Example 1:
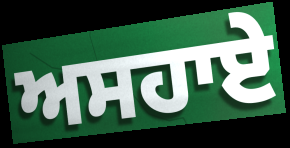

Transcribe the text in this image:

ਅਸਹਾਏ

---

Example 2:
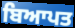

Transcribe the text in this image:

ਬਿਆਪਤ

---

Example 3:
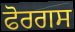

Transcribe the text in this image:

ਫੋਰਗਸ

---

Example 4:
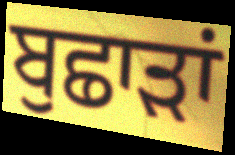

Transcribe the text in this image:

ਬੁਛਾੜਾਂ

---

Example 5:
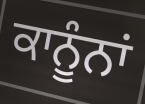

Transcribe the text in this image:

ਕਾਨੂੰਨਾਂ